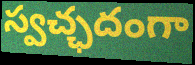
స్వచ్ఛదంగా